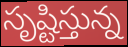
సృష్టిస్తున్న